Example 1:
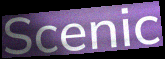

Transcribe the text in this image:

Scenic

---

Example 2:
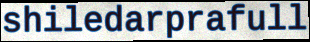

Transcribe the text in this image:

shiledarprafull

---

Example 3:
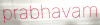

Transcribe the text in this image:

prabhavam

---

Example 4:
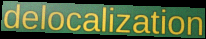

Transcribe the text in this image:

delocalization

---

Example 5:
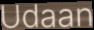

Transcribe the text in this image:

Udaan